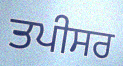
ਤਪੀਸਰ